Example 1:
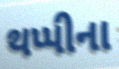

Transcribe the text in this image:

થપ્પીના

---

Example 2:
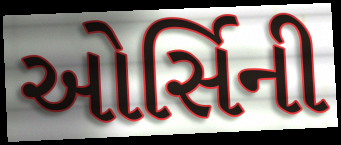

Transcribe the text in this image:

ઓર્સિની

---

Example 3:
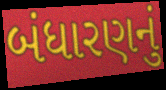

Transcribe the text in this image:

બંધારણનું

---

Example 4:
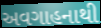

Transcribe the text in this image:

અવગાહનાથી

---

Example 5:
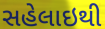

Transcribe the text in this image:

સહેલાઇથી